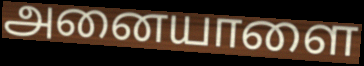
அனையாளை